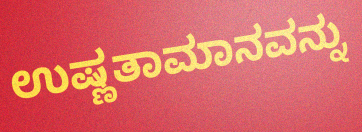
ಉಷ್ಣತಾಮಾನವನ್ನು